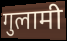
गुलामी